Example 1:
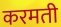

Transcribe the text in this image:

करमती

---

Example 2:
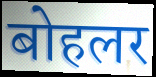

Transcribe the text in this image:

बोहलर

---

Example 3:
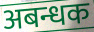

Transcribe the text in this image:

अबन्धक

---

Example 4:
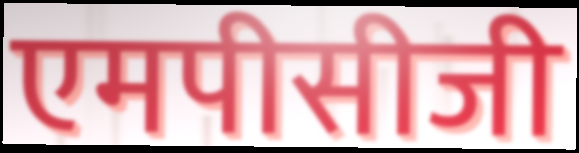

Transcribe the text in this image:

एमपीसीजी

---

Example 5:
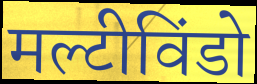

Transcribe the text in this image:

मल्टीविंडो